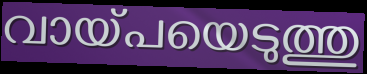
വായ്പയെടുത്തു